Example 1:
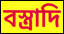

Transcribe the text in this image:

বস্ত্রাদি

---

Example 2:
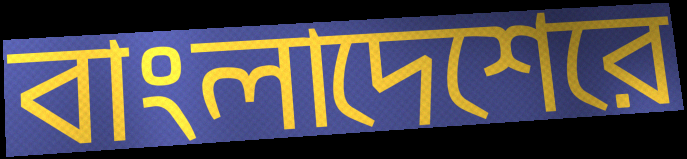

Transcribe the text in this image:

বাংলাদেশেরে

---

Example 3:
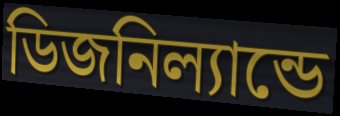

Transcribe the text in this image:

ডিজনিল্যান্ডে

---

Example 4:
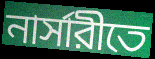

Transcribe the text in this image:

নার্সারীতে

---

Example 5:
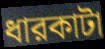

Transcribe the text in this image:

ধারকাটা